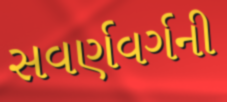
સવર્ણવર્ગની